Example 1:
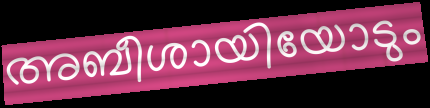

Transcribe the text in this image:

അബീശായിയോടും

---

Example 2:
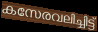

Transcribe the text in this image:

കസേരവലിച്ചിട്ട്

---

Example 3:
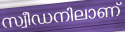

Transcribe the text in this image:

സ്വീഡനിലാണ്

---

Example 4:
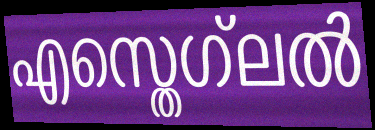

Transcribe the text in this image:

എസ്തെഗ്‌ലൽ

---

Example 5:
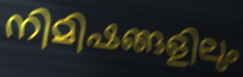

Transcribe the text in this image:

നിമിഷങ്ങളിലും